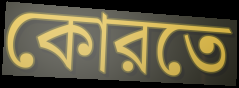
কোরতে